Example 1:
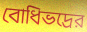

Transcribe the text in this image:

বোধিভদ্রের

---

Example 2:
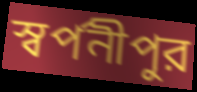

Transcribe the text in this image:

স্বর্পনীপুর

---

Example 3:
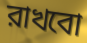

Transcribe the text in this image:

রাখবো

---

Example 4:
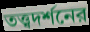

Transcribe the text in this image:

তত্ত্বদর্শনের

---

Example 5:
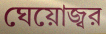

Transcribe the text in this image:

ঘেয়োজ্বর